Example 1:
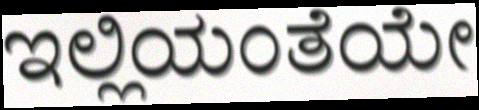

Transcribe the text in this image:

ಇಲ್ಲಿಯಂತೆಯೇ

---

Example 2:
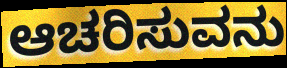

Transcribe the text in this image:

ಆಚರಿಸುವನು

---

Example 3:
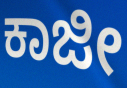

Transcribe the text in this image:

ಕಾಜೀ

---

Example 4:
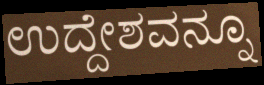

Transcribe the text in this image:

ಉದ್ದೇಶವನ್ನೂ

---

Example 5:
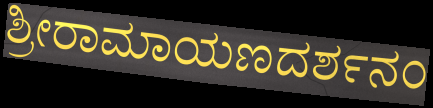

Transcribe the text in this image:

ಶ್ರೀರಾಮಾಯಣದರ್ಶನಂ